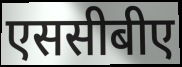
एससीबीए